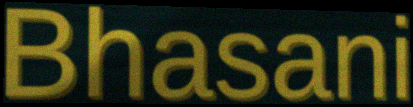
Bhasani